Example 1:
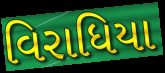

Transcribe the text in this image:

વિરાધિયા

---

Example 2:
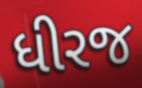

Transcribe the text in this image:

ધીરજ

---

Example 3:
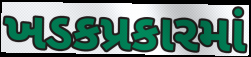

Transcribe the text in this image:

ખડકપ્રકારમાં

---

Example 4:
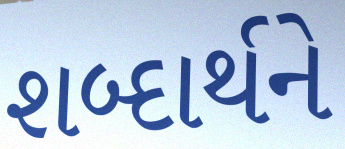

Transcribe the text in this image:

શબ્દાર્થને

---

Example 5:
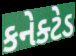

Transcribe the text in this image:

કનેક્ટેડ